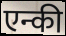
एन्की